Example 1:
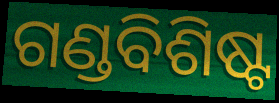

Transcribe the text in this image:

ଗଣ୍ଡବିଶିଷ୍ଟ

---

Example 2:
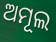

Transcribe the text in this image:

ଅମୂଲ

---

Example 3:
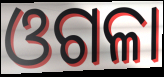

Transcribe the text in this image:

ଓଗଳା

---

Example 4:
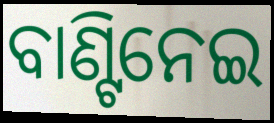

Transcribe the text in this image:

ବାଣ୍ଟିନେଇ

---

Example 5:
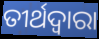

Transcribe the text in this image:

ତୀର୍ଥଦ୍ବାରା